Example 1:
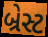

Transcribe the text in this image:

બ્રેસ્ટ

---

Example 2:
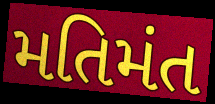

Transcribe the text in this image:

મતિમંત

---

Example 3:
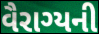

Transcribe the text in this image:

વૈરાગ્યની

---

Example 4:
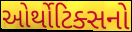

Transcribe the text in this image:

ઓર્થોટિક્સનો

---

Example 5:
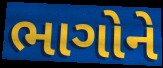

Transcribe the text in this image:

ભાગોને